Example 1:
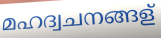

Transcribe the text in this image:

മഹദ്വചനങ്ങള്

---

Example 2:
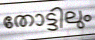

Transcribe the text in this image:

തോട്ടിലും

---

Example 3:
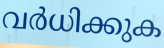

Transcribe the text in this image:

വർധിക്കുക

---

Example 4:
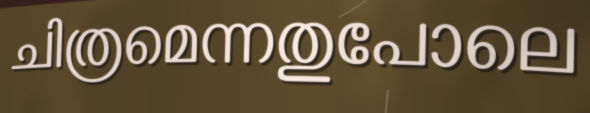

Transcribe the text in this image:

ചിത്രമെന്നതുപോലെ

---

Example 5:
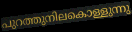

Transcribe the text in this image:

പുറത്തുനിലകൊള്ളുന്നു